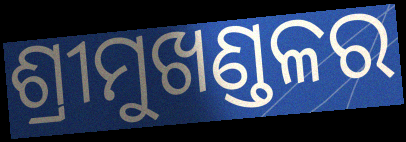
ଶ୍ରୀମୁଖଣ୍ଡଳର